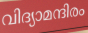
വിദ്യാമന്ദിരം